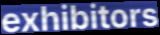
exhibitors